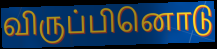
விருப்பினொடு